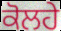
ਕੋਲਹੇ